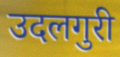
उदलगुरी